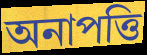
অনাপত্তি